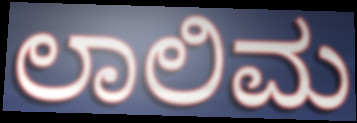
ಲಾಲಿಮ